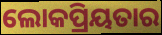
ଲୋକପ୍ରିୟତାର